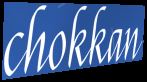
chokkan